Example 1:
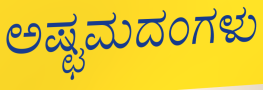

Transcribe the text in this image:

ಅಷ್ಟಮದಂಗಳು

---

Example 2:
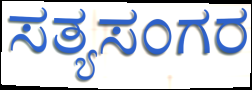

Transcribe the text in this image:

ಸತ್ಯಸಂಗರ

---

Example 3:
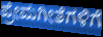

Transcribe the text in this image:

ಪ್ರೇಮಗೀತೆಗಳಿಗೆ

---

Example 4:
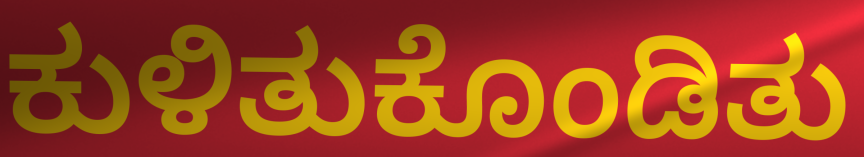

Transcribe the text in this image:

ಕುಳಿತುಕೊಂಡಿತು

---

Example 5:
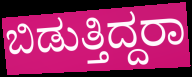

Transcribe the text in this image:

ಬಿಡುತ್ತಿದ್ದರಾ